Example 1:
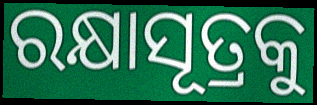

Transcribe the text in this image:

ରକ୍ଷାସୂତ୍ରକୁ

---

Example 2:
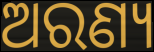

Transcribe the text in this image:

ଅରଣ୍ୟ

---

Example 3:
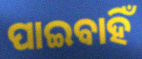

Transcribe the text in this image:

ପାଇବାହିଁ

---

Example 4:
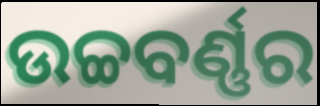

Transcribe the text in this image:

ଉଚ୍ଚବର୍ଣ୍ଣର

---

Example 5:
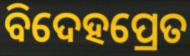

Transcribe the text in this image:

ବିଦେହପ୍ରେତ